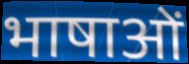
भाषाओें